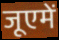
जूएमें